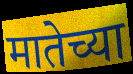
मातेच्या